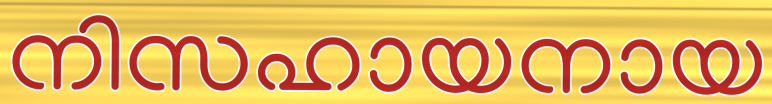
നിസഹായനായ